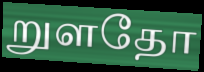
றுளதோ